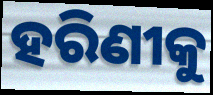
ହରିଣୀକୁ